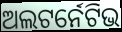
ଅଲଟର୍ନେଟିଭ